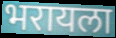
भरायला